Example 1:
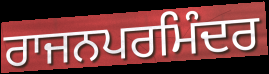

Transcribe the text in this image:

ਰਾਜਨਪਰਮਿੰਦਰ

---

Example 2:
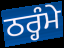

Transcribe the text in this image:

ਠਰ੍ਹੰਮੇ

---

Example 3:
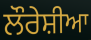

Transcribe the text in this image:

ਲੌਰੇਸ਼ੀਆ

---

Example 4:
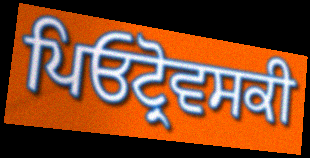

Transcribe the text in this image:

ਪਿਓਟ੍ਰੋਵਸਕੀ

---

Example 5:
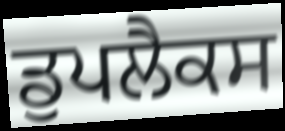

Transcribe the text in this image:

ਡੁਪਲੈਕਸ